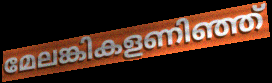
മേലങ്കികളണിഞ്ഞ്